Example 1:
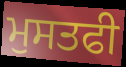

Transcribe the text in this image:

ਮੁਸਤਫੀ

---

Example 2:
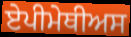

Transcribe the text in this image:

ਏਪੀਮੇਥੀਅਸ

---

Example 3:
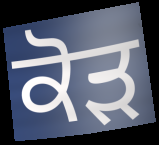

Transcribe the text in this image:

ਕੋੜ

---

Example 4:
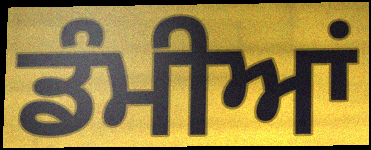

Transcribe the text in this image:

ਡੰਮੀਆਂ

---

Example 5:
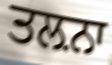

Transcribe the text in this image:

ਤਲ਼ਨਾ